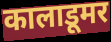
कालाडूमर